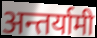
अन्‍तर्यामी